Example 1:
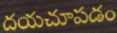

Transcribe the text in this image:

దయచూపడం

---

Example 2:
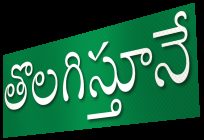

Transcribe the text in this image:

తొలగిస్తూనే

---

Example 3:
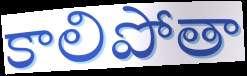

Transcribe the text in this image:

కాలిపోతా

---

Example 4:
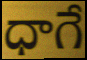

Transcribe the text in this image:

ధాగే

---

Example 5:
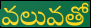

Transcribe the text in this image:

వలువతో